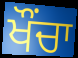
ਖੌੰਚਾ